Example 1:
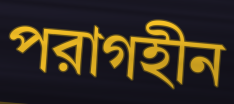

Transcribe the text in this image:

পরাগহীন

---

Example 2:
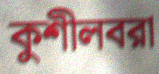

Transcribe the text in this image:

কুশীলবরা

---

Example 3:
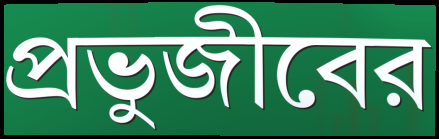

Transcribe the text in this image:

প্রভুজীবের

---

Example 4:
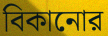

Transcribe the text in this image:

বিকানোর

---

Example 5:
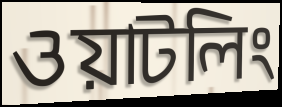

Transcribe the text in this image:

ওয়াটলিং